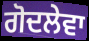
ਗੋਦਲੇਵਾ